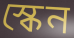
স্কেন